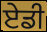
ਏਡੀ